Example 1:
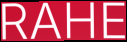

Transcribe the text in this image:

RAHE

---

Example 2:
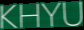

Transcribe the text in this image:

KHYU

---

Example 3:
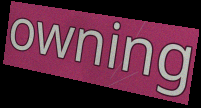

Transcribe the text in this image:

owning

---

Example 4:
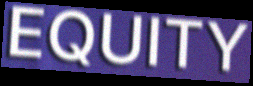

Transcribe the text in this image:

EQUITY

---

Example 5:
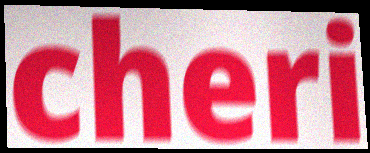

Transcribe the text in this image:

cheri